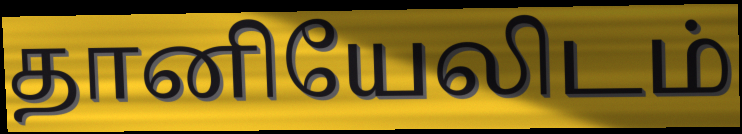
தானியேலிடம்